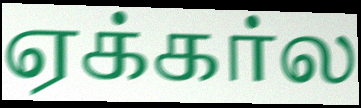
ஏக்கர்ல